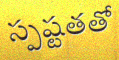
స్పష్టతతో